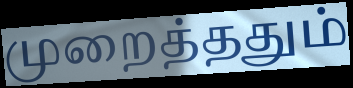
முறைத்ததும்